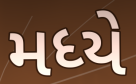
મધ્યે